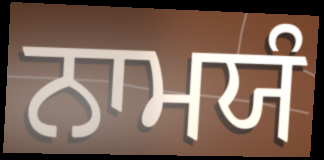
ਨਾਮਯੰ